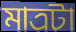
মাত্রটা